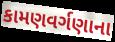
કામણવર્ગણાના